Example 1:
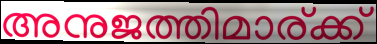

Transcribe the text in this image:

അനുജത്തിമാര്ക്ക്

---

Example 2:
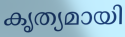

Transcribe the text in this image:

കൃത്യമായി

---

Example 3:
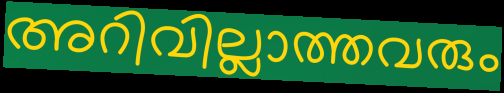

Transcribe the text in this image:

അറിവില്ലാത്തവരും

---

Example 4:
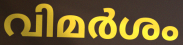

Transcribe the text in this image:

വിമർശം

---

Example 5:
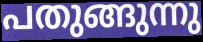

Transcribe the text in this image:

പതുങ്ങുന്നു